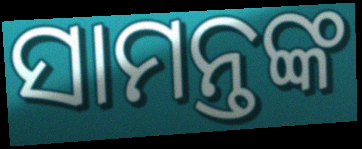
ସାମନ୍ତଙ୍କ